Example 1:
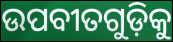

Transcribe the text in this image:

ଉପବୀତଗୁଡ଼ିକୁ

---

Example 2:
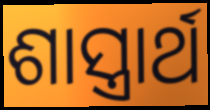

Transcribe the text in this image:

ଶାସ୍ତ୍ରାର୍ଥ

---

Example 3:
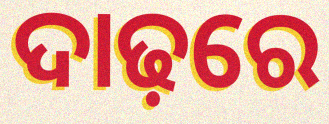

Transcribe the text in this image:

ଦାଢ଼ରେ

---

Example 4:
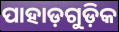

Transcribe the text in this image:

ପାହାଡ଼ଗୁଡ଼ିକ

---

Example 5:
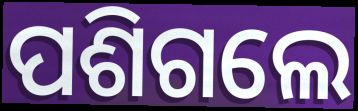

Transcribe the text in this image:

ପଶିଗଲେ